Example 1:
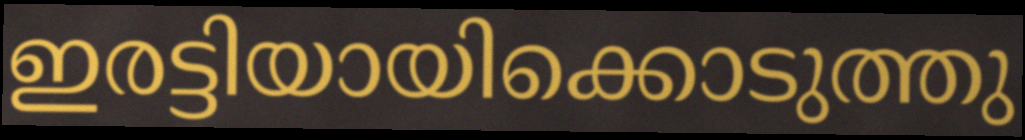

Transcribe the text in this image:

ഇരട്ടിയായിക്കൊടുത്തു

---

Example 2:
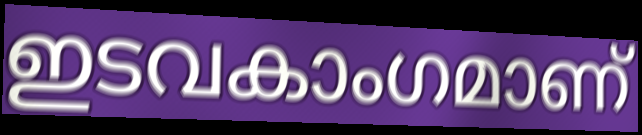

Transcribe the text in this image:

ഇടവകാംഗമാണ്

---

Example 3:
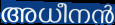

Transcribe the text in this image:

അധീനൻ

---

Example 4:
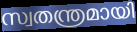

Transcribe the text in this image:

സ്വതന്ത്രമായി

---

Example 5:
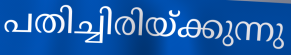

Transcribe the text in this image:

പതിച്ചിരിയ്ക്കുന്നു